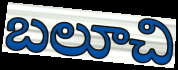
బలూచి